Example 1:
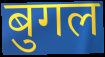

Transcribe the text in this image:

बुगल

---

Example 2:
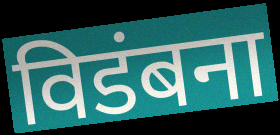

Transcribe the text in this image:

विडंबना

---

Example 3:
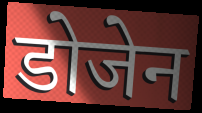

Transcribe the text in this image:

डोजेन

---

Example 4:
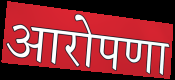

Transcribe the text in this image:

आरोपणा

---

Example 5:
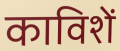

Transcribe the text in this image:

काविशें